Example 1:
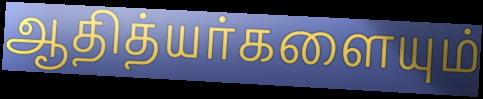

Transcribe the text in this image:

ஆதித்யர்களையும்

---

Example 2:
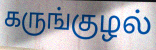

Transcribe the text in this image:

கருங்குழல்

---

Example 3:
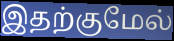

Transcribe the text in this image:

இதற்குமேல்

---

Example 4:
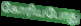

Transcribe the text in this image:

கோரியபோது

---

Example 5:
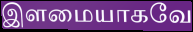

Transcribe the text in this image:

இளமையாகவே